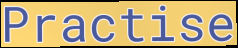
Practise